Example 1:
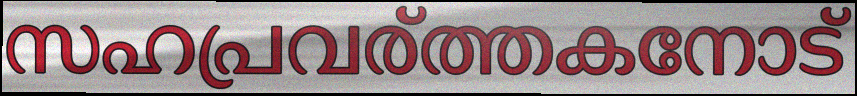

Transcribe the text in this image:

സഹപ്രവര്ത്തകനോട്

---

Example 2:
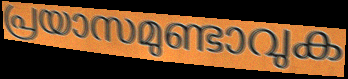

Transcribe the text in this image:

പ്രയാസമുണ്ടാവുക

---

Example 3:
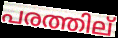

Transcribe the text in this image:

പരത്തില്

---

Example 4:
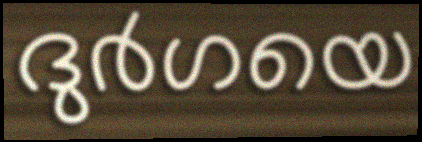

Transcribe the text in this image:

ദുർഗയെ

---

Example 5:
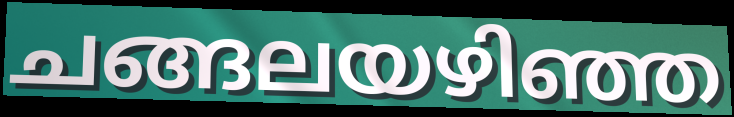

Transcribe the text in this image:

ചങ്ങലയഴിഞ്ഞ